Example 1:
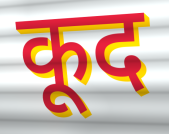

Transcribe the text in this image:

कूद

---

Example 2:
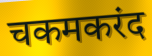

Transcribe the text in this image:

चकमकरंद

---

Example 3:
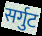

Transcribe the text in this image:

सर्गुट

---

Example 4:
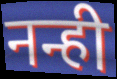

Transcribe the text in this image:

नन्ही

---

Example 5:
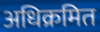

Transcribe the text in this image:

अधिक्रमित